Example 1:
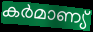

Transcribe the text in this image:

കർമാണ്യ്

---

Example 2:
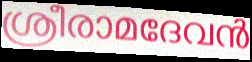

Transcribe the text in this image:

ശ്രീരാമദേവൻ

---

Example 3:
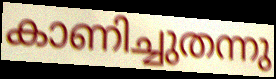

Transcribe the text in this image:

കാണിച്ചുതന്നു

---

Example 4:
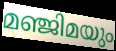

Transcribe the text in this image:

മഞ്ജിമയും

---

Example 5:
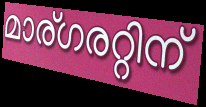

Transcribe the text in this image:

മാര്ഗരറ്റിന്